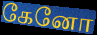
கேனோ